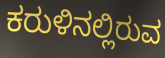
ಕರುಳಿನಲ್ಲಿರುವ